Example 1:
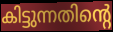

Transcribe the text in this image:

കിട്ടുന്നതിന്റെ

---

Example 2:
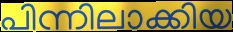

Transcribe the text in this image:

പിന്നിലാക്കിയ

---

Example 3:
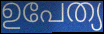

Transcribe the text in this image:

ഉപേത്യ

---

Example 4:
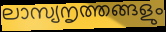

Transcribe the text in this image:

ലാസ്യനൃത്തങ്ങളും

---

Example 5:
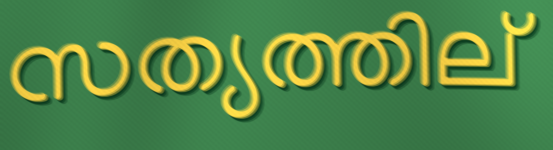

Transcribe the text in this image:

സത്യത്തില്